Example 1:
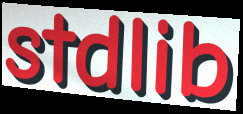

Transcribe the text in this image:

stdlib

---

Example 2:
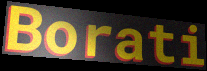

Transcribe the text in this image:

Borati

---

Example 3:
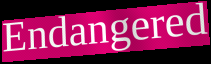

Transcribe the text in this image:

Endangered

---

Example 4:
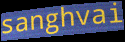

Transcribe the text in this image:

sanghvai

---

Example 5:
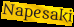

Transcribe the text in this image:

Napesaki